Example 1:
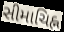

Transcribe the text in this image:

સીમાચિહ્ન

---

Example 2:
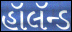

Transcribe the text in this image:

હૉલૅન્ડ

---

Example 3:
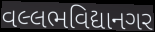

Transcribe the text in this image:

વલ્લભવિદ્યાનગર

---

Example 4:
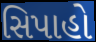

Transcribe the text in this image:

સિપાહો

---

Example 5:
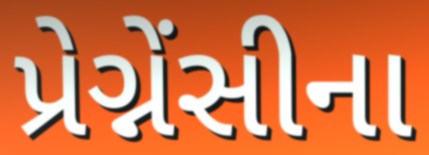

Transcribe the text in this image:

પ્રેગ્નેંસીના